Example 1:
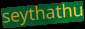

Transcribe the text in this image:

seythathu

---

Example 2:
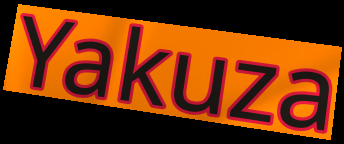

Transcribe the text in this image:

Yakuza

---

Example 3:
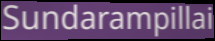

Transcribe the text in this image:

Sundarampillai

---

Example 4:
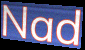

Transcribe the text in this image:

Nad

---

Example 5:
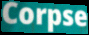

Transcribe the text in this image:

Corpse